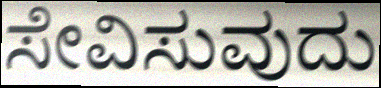
ಸೇವಿಸುವುದು